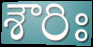
శౌరిః